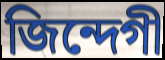
জিন্দেগী